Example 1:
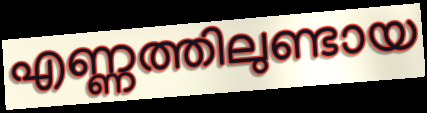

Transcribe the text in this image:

എണ്ണത്തിലുണ്ടായ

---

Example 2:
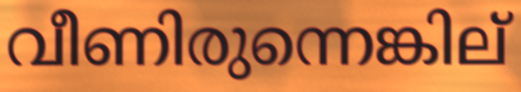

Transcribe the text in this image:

വീണിരുന്നെങ്കില്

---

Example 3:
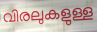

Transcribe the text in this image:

വിരലുകളുള്ള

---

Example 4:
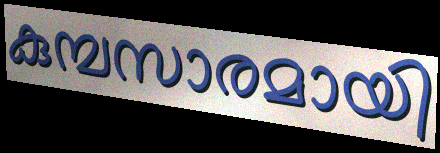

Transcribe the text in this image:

കുമ്പസാരമായി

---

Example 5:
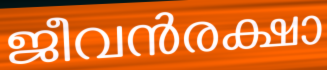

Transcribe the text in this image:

ജീവൻരക്ഷാ